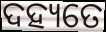
ଦହ୍ୟତେ